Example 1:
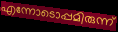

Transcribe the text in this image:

എന്നോടൊപ്പമിരുന്ന്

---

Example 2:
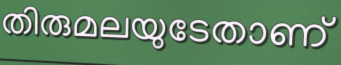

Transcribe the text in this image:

തിരുമലയുടേതാണ്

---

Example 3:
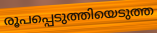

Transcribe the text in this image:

രൂപപ്പെടുത്തിയെടുത്ത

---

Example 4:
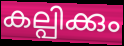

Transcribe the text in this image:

കല്പിക്കും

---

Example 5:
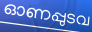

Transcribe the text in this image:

ഓണപ്പുടവ